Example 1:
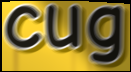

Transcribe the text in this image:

cug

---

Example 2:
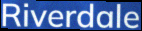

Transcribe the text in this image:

Riverdale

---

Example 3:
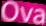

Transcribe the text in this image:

Ova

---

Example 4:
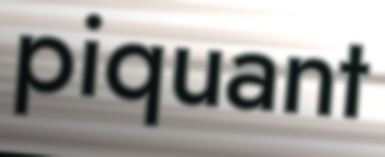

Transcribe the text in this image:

piquant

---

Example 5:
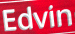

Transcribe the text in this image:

Edvin